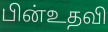
பின்உதவி